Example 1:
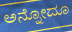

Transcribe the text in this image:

ಅನ್ನೋದೂ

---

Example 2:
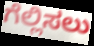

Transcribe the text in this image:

ಗೆಲ್ಲಿಸಲು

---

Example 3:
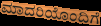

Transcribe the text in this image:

ಮಾದರಿಯೊಂದಿಗೆ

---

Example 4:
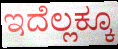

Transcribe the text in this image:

ಇದೆಲ್ಲಕ್ಕೂ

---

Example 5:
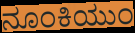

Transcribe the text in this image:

ನೂಂಕಿಯುಂ